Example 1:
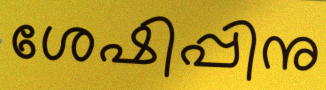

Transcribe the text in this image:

ശേഷിപ്പിനു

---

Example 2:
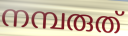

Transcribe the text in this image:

നമ്പരുത്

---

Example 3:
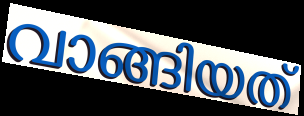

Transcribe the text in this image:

വാങ്ങിയത്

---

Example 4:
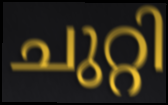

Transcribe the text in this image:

ചുറ്റി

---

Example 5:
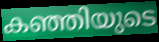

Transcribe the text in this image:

കഞ്ഞിയുടെ